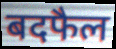
बदफैल